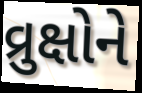
વ્રુક્ષોને